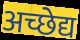
अच्छेद्य